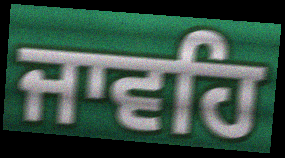
ਜਾਵਹਿ